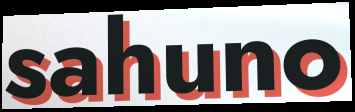
sahuno